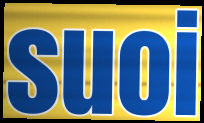
suoi